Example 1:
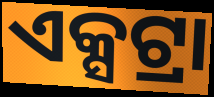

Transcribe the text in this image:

ଏକ୍ସଟ୍ରା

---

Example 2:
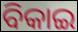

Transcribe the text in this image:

ବିକାଇ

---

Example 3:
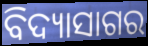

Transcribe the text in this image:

ବିଦ୍ୟାସାଗର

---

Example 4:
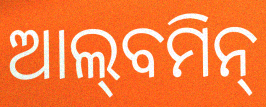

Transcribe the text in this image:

ଆଲ୍‌ବମିନ୍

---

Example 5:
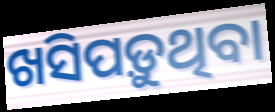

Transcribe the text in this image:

ଖସିପଡ଼ୁଥିବା